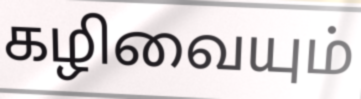
கழிவையும்